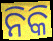
ନିକି